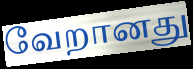
வேறானது